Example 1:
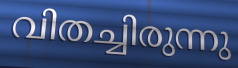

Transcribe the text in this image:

വിതച്ചിരുന്നു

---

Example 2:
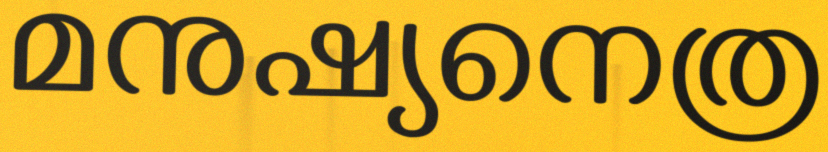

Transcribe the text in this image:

മനുഷ്യനെത്ര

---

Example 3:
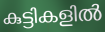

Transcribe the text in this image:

കുട്ടികളിൽ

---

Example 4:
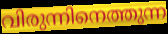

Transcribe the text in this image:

വിരുന്നിനെത്തുന്ന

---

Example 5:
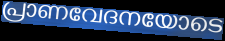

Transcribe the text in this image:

പ്രാണവേദനയോടെ